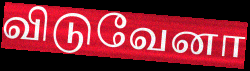
விடுவேனா